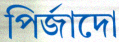
পিৰ্জাদো